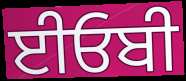
ਈਓਬੀ